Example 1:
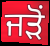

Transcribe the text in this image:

ਜੜੋਂ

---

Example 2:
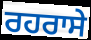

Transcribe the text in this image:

ਰਹਰਾਸੇ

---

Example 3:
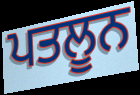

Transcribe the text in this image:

ਪਤਲੂਨ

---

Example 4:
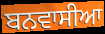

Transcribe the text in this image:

ਬਨਵਾਸੀਆ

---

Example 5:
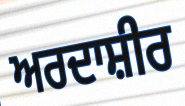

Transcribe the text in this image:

ਅਰਦਾਸ਼ੀਰ